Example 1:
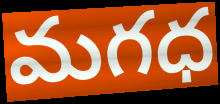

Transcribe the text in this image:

మగధ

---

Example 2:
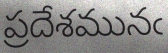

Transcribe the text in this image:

ప్రదేశమునఁ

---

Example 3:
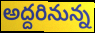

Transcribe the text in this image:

అద్దరినున్న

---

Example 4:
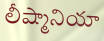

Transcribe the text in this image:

లీష్మానియా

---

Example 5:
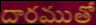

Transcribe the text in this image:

దారముతో